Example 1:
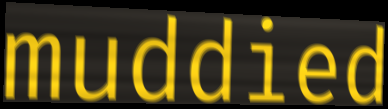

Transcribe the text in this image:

muddied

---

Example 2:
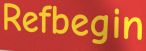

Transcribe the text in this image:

Refbegin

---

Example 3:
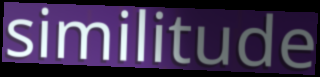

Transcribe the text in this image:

similitude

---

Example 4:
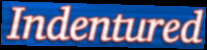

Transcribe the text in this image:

Indentured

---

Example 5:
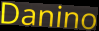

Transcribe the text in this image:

Danino